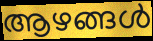
ആഴങ്ങൾ